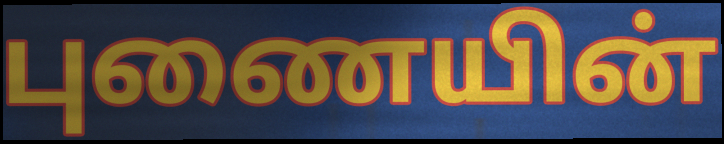
புணையின்